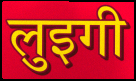
लुइगी